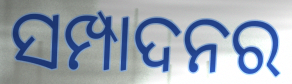
ସମ୍ପାଦନର